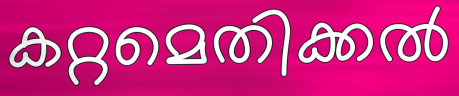
കറ്റമെതിക്കൽ